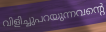
വിളിച്ചുപറയുന്നവന്റെ